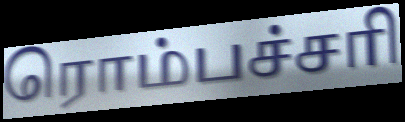
ரொம்பச்சரி